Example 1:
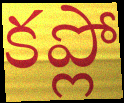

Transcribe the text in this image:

కప్లో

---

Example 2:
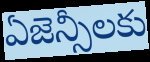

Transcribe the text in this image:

ఏజెన్సీలకు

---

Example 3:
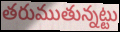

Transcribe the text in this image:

తరుముతున్నట్టు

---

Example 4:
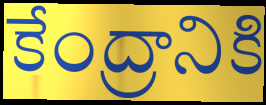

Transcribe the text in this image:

కేంద్రానికి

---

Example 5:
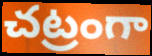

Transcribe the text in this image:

చట్రంగా